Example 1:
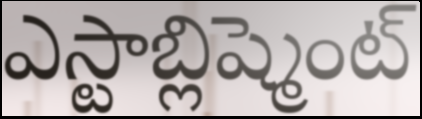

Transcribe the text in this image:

ఎస్టాబ్లిష్మెంట్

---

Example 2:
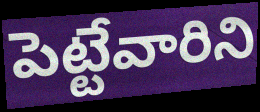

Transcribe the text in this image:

పెట్టేవారిని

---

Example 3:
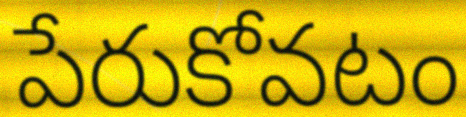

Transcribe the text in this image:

పేరుకోవటం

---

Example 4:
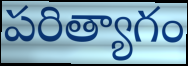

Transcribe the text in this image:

పరిత్యాగం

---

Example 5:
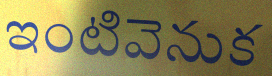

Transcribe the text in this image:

ఇంటివెనుక